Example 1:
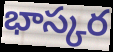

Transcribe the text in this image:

భాస్కర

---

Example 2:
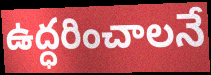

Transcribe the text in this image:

ఉద్ధరించాలనే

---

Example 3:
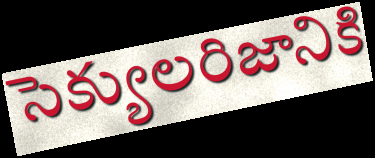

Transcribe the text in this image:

సెక్యులరిజానికి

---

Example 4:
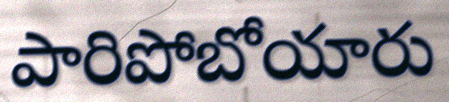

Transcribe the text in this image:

పారిపోబోయారు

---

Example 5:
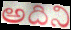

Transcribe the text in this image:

అదిని